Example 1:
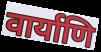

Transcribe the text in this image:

वार्याणि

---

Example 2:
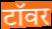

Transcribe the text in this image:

टॉवर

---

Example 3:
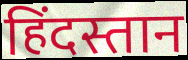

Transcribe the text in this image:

हिंदस्तान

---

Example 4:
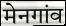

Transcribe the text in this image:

मेनगांव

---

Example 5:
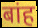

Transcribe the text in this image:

बांह